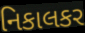
નિકાલકર